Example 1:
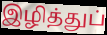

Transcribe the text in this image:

இழித்துப்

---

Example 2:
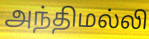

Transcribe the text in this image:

அந்திமல்லி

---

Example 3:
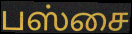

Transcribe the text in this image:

பஸ்சை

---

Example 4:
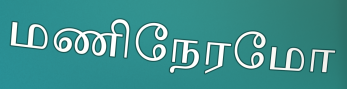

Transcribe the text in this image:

மணிநேரமோ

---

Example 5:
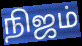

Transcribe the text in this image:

நிஜம்